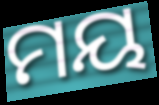
ମୟ